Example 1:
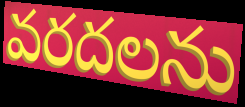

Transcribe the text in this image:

వరదలను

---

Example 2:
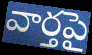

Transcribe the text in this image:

వార్తపై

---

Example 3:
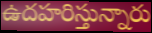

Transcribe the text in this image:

ఉదహరిస్తున్నారు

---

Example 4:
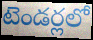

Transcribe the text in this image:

టెండర్లలో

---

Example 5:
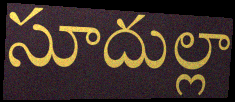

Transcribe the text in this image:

సూదుల్లా